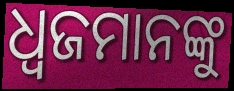
ଧ୍ୱଜମାନଙ୍କୁ